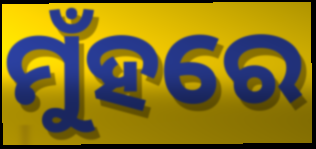
ମୁଁହରେ